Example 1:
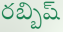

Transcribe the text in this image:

రబ్బిష్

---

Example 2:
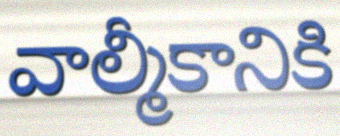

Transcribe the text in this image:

వాల్మీకానికి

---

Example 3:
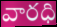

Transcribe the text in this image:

వారధి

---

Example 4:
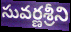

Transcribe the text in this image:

సువర్ణశ్రీని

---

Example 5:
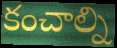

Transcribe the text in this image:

కంచాల్ని